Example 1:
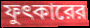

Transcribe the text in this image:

ফুৎকারের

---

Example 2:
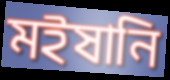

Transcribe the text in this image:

মইষানি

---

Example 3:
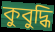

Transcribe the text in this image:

কুবুদ্ধি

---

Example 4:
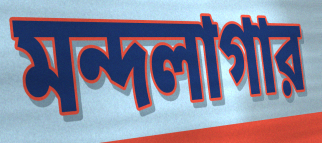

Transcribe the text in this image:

মন্দলাগার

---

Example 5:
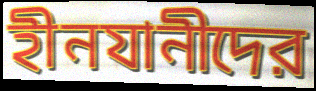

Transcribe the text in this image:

হীনযানীদের